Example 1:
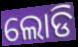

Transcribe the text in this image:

ଲୋଡି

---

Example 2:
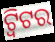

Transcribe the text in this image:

ଟ୍ୱିଟର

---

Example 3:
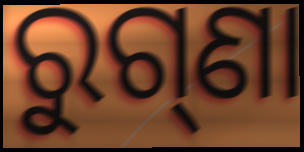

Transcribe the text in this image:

ରୁଗ୍‌ଣା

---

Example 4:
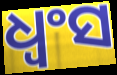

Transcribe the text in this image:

ଧ୍ୱଂସ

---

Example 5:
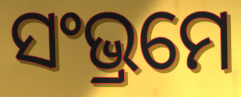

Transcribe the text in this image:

ସଂଭ୍ରମେ